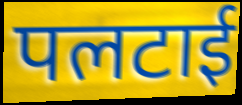
पलटाई